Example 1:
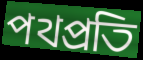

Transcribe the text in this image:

পথপ্রতি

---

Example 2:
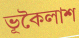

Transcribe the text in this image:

ভূকৈলাশ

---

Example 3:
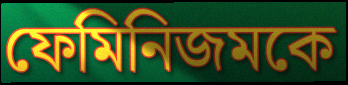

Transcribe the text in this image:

ফেমিনিজমকে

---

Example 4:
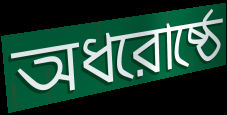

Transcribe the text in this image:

অধরোষ্ঠে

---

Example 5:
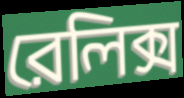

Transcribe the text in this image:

রেলিক্স